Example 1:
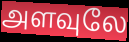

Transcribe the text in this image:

அளவுலே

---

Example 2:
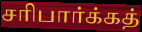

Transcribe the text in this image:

சரிபார்க்கத்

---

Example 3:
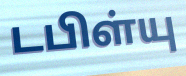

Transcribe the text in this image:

டபிள்யு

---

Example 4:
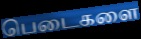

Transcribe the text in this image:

பெடைகளை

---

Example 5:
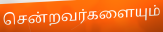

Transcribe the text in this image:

சென்றவர்களையும்